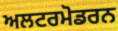
ਅਲਟਰਮੋਡਰਨ